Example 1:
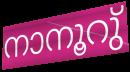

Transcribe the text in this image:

നാനൂറു്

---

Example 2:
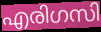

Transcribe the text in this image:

എരിഗസി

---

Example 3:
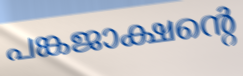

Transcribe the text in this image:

പങ്കജാക്ഷന്റെ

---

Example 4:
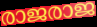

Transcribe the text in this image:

രാജരാജ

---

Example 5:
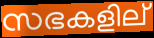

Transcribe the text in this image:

സഭകളില്